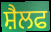
ਸ਼ੈਲਫ